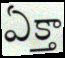
ఏక్తా